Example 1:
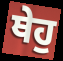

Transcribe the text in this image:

ਥੇਹੁ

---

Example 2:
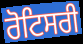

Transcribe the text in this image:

ਰੋਟਿਸਰੀ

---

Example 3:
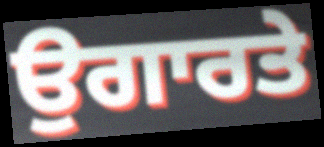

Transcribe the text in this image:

ਉਗਾਰਤੇ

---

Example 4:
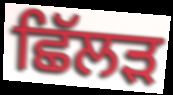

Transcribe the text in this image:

ਛਿੱਲੜ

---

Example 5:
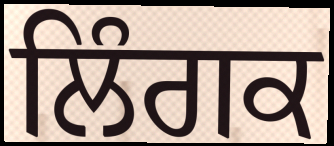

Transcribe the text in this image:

ਲਿੰਗਕ